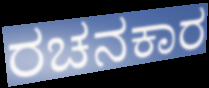
ರಚನಕಾರ